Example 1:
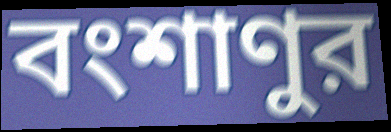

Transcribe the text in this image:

বংশাণুর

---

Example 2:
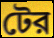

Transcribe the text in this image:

টের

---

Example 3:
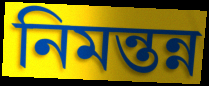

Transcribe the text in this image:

নিমন্তন্ন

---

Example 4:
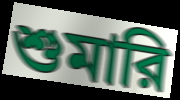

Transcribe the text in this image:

শুমারি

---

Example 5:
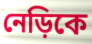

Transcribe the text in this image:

নেড়িকে